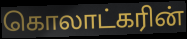
கொலாட்கரின்